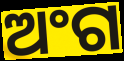
ଅଂଗ